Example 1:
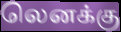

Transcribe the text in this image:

லெனக்கு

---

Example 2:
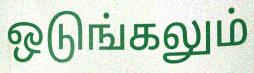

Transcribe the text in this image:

ஒடுங்கலும்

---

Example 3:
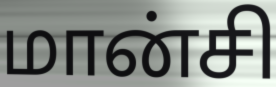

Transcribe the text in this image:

மான்சி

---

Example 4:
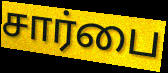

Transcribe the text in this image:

சார்பை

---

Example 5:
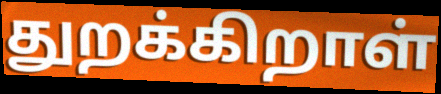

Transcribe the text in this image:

துறக்கிறாள்